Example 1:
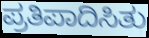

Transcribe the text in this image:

ಪ್ರತಿಪಾದಿಸಿತು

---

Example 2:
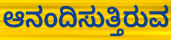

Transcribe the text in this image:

ಆನಂದಿಸುತ್ತಿರುವ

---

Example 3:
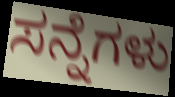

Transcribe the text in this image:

ಸನ್ನೆಗಳು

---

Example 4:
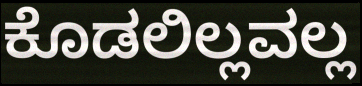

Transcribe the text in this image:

ಕೊಡಲಿಲ್ಲವಲ್ಲ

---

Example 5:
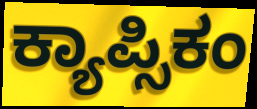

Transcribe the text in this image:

ಕ್ಯಾಪ್ಸಿಕಂ